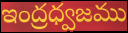
ఇంద్రధ్వజము